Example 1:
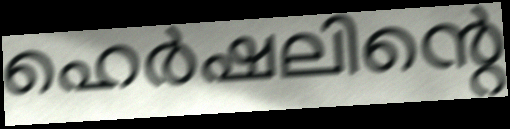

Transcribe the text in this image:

ഹെർഷലിന്റെ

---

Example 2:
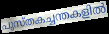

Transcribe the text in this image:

പുസ്തകച്ചന്തകളിൽ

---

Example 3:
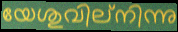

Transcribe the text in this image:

യേശുവില്നിന്നു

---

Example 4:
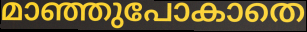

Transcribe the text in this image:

മാഞ്ഞുപോകാതെ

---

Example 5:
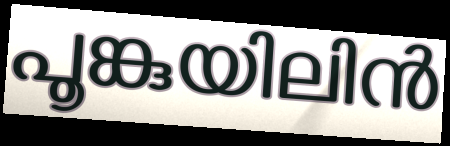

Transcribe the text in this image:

പൂങ്കുയിലിൻ